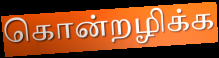
கொன்றழிக்க